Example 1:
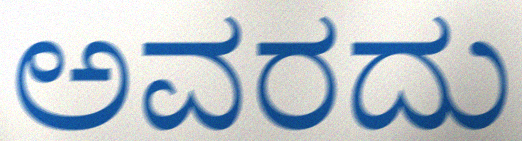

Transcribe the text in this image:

ಅವರದು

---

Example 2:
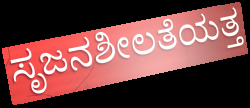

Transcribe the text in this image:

ಸೃಜನಶೀಲತೆಯತ್ತ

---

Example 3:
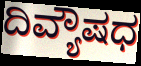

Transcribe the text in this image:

ದಿವ್ಯೌಷಧ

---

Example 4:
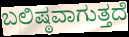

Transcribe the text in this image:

ಬಲಿಷ್ಠವಾಗುತ್ತದೆ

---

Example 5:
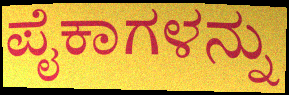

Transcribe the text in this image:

ಪೈಕಾಗಳನ್ನು